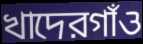
খাদেরগাঁও